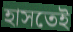
হাসতেই